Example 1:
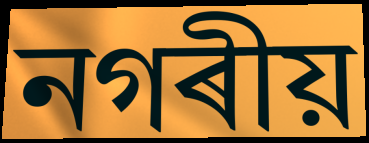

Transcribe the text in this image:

নগৰীয়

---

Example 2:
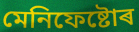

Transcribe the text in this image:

মেনিফেষ্টোৰ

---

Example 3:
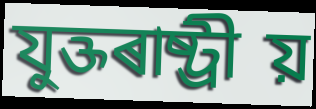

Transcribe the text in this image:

যুক্তৰাষ্ট্ৰীয়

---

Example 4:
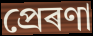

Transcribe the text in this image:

প্ৰেৰণা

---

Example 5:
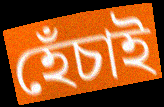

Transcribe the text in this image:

হেঁচাই